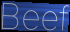
Beef